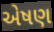
એષણ